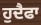
ਹੁਦੈਫਾ